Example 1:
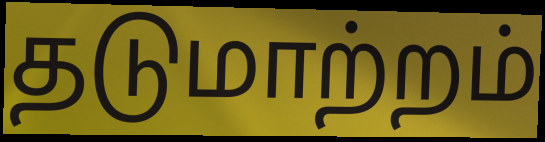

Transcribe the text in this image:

தடுமாற்றம்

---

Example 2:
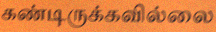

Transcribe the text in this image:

கண்டிருக்கவில்லை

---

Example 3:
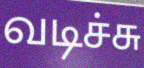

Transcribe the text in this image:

வடிச்சு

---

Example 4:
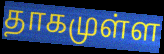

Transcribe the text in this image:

தாகமுள்ள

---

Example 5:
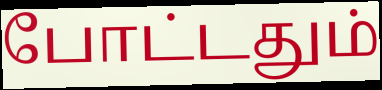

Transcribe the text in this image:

போட்டதும்